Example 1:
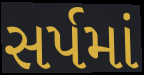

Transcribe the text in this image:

સર્પમાં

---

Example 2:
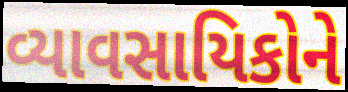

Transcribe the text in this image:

વ્યાવસાયિકોને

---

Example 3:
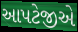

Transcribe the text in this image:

આપટેજીએ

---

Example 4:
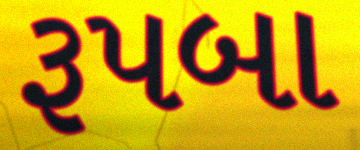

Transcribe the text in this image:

રૂપબા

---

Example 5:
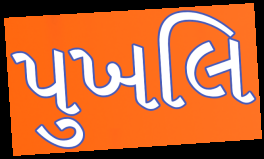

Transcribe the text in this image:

પુખલિ